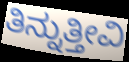
ತಿನ್ನುತ್ತೀವಿ